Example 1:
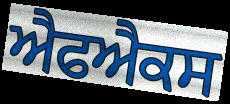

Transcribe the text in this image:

ਐਫਐਕਸ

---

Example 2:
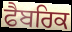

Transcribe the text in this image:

ਫੈਬਰਿਕ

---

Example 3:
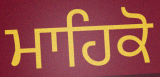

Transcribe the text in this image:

ਮਾਹਿਕੋ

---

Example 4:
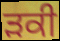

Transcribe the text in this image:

ੜਕੀ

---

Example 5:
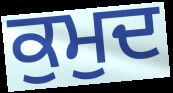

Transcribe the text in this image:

ਕੁਮੁਦ